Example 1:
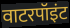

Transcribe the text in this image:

वाटरपॉइंट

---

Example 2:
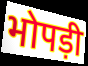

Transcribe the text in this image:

भोपड़ी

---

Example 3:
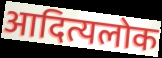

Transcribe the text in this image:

आदित्यलोक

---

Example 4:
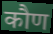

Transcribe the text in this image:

कौण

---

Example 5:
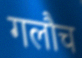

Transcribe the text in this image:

गलौच